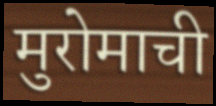
मुरोमाची